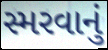
સ્મરવાનું